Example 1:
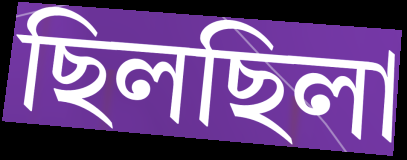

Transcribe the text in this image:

ছিলছিলা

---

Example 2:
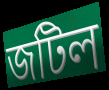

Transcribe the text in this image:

জটিল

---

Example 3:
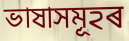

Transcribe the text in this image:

ভাষাসমূহৰ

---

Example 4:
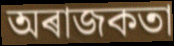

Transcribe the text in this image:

অৰাজকতা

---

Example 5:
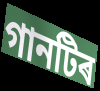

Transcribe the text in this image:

গানটিৰ